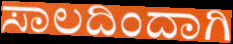
ಸಾಲದಿಂದಾಗಿ